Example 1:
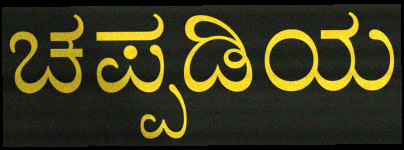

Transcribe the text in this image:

ಚಪ್ಪಡಿಯ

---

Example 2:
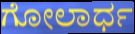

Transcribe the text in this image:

ಗೋಲಾರ್ಧ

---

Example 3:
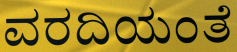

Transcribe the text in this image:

ವರದಿಯಂತೆ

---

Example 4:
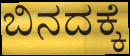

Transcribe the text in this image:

ಬಿನದಕ್ಕೆ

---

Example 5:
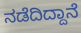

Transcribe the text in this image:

ನಡೆದಿದ್ದಾನೆ